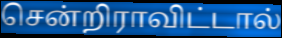
சென்றிராவிட்டால்